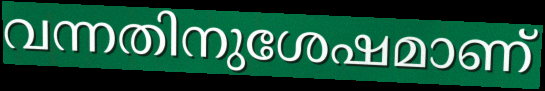
വന്നതിനുശേഷമാണ്